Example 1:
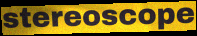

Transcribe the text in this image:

stereoscope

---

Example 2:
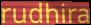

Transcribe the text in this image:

rudhira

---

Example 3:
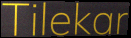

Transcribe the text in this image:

Tilekar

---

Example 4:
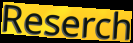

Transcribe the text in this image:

Reserch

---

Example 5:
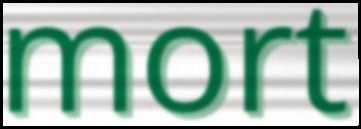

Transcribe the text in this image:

mort